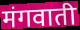
मंगवाती